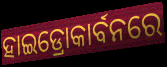
ହାଇଡ୍ରୋକାର୍ବନରେ